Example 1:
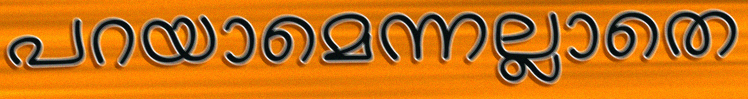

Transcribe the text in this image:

പറയാമെന്നല്ലാതെ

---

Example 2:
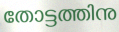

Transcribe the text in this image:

തോട്ടത്തിനു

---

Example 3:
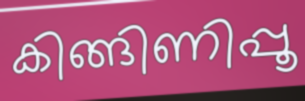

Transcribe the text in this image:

കിങ്ങിണിപ്പൂ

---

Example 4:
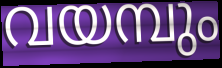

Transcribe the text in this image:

വയമ്പും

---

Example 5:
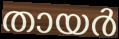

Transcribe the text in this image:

തായർ